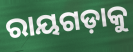
ରାୟଗଡ଼ାକୁ